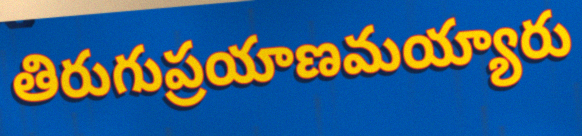
తిరుగుప్రయాణమయ్యారు